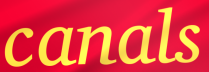
canals